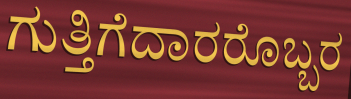
ಗುತ್ತಿಗೆದಾರರೊಬ್ಬರ